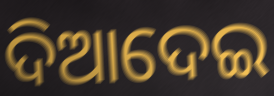
ଦିଆଦେଇ